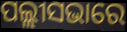
ପଲ୍ଲୀସଭାରେ